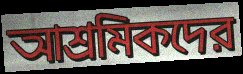
আশ্রমিকদের